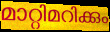
മാറ്റിമറിക്കും